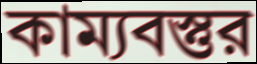
কাম্যবস্তুর